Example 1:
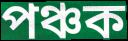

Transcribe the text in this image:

পঞ্চক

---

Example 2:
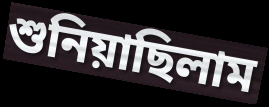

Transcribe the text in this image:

শুনিয়াছিলাম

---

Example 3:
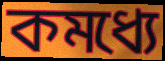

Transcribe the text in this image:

কমধ্যে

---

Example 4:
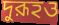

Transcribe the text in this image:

দুরূহও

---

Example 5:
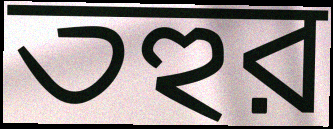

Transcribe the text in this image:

তহুর